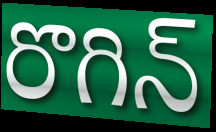
రొగిన్